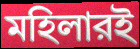
মহিলারই